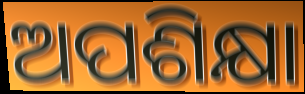
ଅପଶିକ୍ଷା